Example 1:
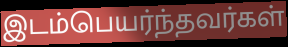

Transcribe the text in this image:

இடம்பெயர்ந்தவர்கள்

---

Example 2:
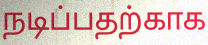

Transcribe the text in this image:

நடிப்பதற்காக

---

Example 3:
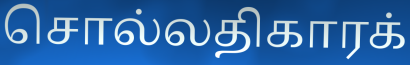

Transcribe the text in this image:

சொல்லதிகாரக்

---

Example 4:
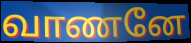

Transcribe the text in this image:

வாணனே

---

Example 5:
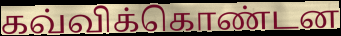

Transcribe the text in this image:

கவ்விக்கொண்டன